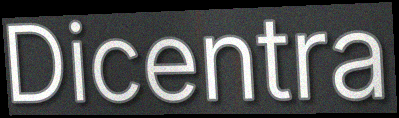
Dicentra